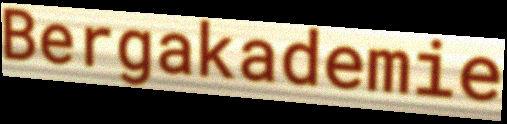
Bergakademie